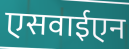
एसवाईएन